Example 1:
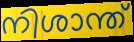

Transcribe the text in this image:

നിശാന്ത്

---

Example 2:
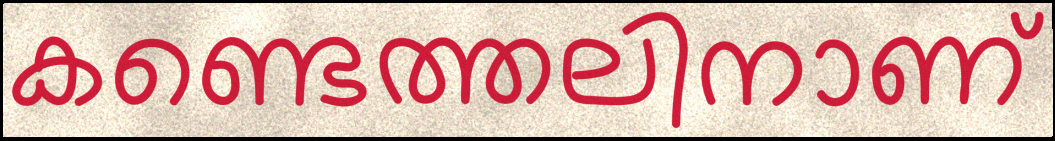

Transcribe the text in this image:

കണ്ടെത്തലിനാണ്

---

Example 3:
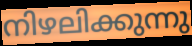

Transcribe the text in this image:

നിഴലിക്കുന്നു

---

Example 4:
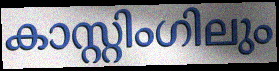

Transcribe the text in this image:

കാസ്റ്റിംഗിലും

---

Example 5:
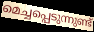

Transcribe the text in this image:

മെച്ചപ്പെടുന്നുണ്ട്